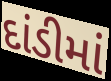
દાંડીમાં